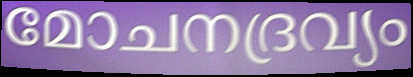
മോചനദ്രവ്യം